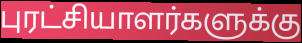
புரட்சியாளர்களுக்கு